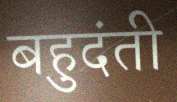
बहुदंती